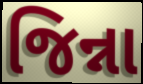
જિન્ના